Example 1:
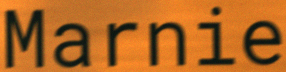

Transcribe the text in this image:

Marnie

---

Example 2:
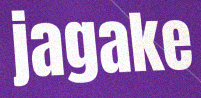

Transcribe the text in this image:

jagake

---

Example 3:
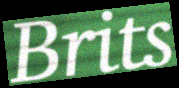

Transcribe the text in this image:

Brits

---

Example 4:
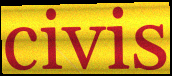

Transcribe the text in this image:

civis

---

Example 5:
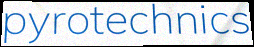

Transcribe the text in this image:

pyrotechnics